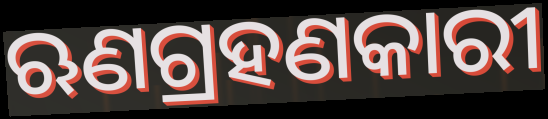
ଋଣଗ୍ରହଣକାରୀ